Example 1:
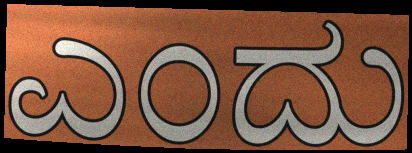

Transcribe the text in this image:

ಎಂದು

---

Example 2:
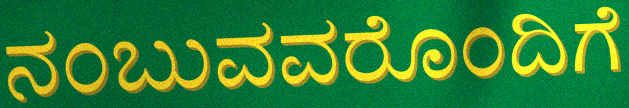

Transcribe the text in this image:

ನಂಬುವವರೊಂದಿಗೆ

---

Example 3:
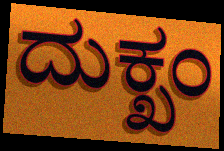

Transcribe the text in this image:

ದುಕ್ಖಂ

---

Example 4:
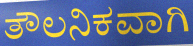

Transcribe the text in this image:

ತೌಲನಿಕವಾಗಿ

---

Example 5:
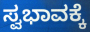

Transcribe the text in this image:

ಸ್ವಭಾವಕ್ಕೆ